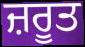
ਜ਼ਰੂਤ